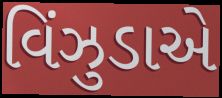
વિંઝુડાએ